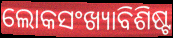
ଲୋକସଂଖ୍ୟାବିଶିଷ୍ଟ